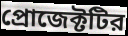
প্রোজেক্টটির